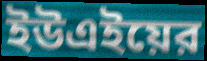
ইউএইয়ের